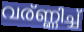
വര്ണ്ണിച്ച്